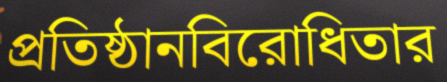
প্রতিষ্ঠানবিরোধিতার